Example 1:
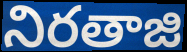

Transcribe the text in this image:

నిరతాజి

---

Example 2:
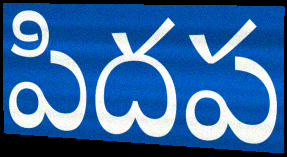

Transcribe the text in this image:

పిదప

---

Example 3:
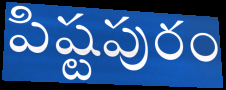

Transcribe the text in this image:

పిష్టపురం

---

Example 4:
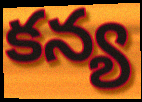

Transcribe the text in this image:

కన్య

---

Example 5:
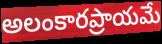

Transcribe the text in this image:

అలంకారప్రాయమే